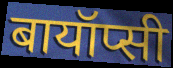
बायॉप्सी